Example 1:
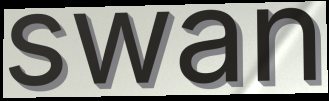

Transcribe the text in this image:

swan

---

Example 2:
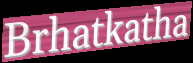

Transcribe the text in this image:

Brhatkatha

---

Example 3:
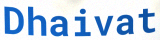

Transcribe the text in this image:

Dhaivat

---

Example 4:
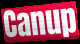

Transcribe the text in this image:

Canup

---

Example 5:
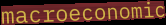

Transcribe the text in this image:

macroeconomic